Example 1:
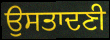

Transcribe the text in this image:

ਉਸਤਾਦਣੀ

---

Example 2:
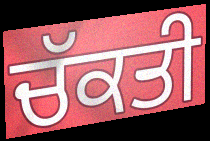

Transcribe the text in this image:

ਚੱਕਤੀ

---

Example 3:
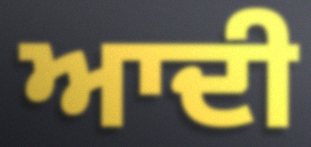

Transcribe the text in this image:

ਆਦੀ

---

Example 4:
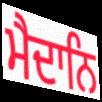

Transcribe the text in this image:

ਮੈਦਾਨਿ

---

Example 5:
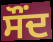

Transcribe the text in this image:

ਸੌਂਦ